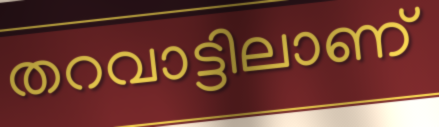
തറവാട്ടിലാണ്